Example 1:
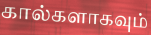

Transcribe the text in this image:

கால்களாகவும்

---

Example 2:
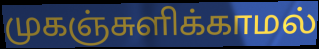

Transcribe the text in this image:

முகஞ்சுளிக்காமல்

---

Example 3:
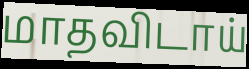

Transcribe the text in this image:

மாதவிடாய்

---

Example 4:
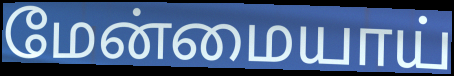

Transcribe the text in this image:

மேன்மையாய்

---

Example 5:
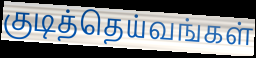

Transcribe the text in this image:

குடித்தெய்வங்கள்